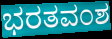
ಭರತವಂಶ